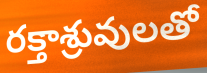
రక్తాశ్రువులతో